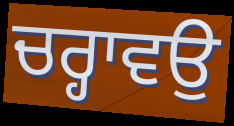
ਚਰ੍ਹਾਵਉ